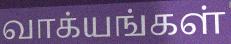
வாக்யங்கள்